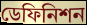
ডেফিনিশন